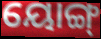
ୟୋଙ୍ଗ୍